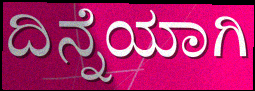
ದಿನ್ನೆಯಾಗಿ